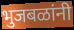
भुजबळांनी